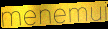
menemui